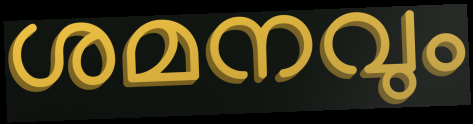
ശമനവും